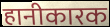
हानीकारक